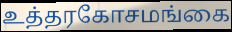
உத்தரகோசமங்கை